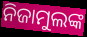
ନିଜାମୁଲଙ୍କ